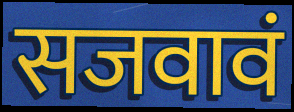
सजवावं